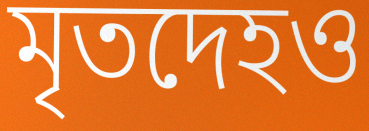
মৃতদেহও